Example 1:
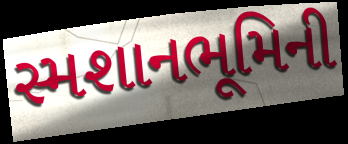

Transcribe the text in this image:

સ્મશાનભૂમિની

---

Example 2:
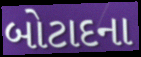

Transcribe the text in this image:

બોટાદના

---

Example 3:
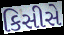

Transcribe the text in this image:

કિસીસે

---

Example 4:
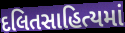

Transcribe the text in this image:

દલિતસાહિત્યમાં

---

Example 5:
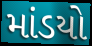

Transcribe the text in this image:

માંડયો